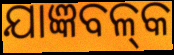
ଯାଜ୍ଞବଳ୍‌କ